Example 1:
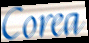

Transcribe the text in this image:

Corea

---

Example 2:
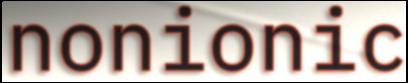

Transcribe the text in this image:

nonionic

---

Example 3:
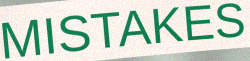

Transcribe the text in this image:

MISTAKES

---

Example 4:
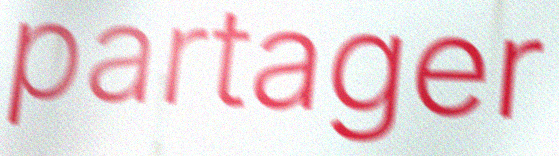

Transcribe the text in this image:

partager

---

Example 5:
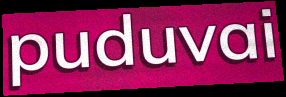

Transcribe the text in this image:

puduvai